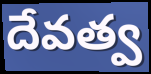
దేవత్వ